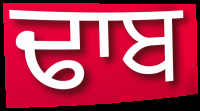
ਢਾਬ